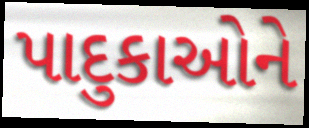
પાદુકાઓને